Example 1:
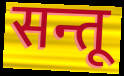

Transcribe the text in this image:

सन्तू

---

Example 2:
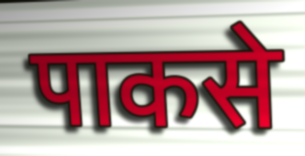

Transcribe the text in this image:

पाकसे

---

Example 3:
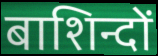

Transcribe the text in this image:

बाशिन्दों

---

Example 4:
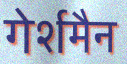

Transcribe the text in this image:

गेर्शमैन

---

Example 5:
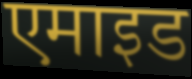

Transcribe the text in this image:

एमाइड